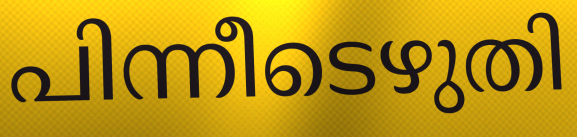
പിന്നീടെഴുതി